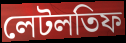
লেটলতিফ